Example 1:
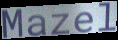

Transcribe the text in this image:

Mazel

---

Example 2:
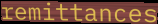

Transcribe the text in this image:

remittances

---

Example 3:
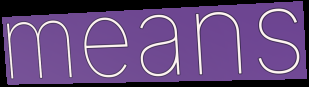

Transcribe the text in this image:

means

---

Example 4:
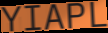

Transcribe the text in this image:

YIAPL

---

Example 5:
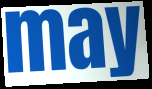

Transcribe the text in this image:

may